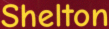
Shelton